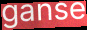
ganse